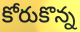
కోరుకొన్న